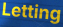
Letting